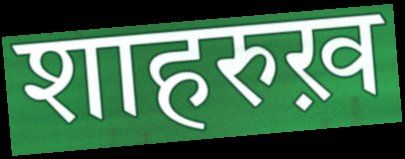
शाहरुख़